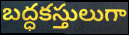
బద్ధకస్తులుగా